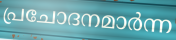
പ്രചോദനമാർന്ന